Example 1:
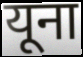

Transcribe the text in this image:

यूना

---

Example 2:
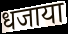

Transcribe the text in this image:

धजाया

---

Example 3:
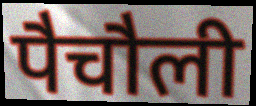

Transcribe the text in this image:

पैचौली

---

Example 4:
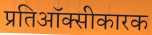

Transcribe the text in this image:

प्रतिऑक्सीकारक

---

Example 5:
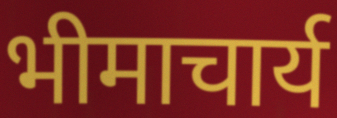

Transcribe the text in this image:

भीमाचार्य